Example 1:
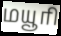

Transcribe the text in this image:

மயூரி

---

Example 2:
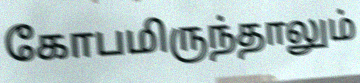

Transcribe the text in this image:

கோபமிருந்தாலும்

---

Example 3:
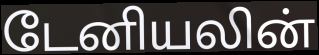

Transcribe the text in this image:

டேனியலின்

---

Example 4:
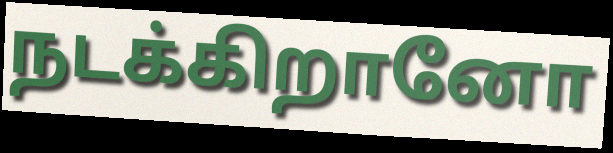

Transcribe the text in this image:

நடக்கிறானோ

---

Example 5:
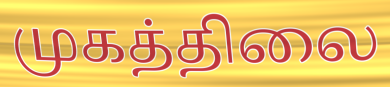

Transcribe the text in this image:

முகத்திலை